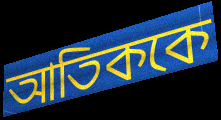
আতিককে